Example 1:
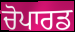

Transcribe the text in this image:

ਚੋਪਾਰਡ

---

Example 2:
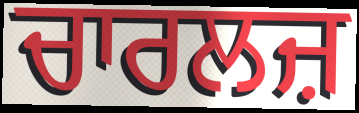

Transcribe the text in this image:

ਚਾਰਲਜ਼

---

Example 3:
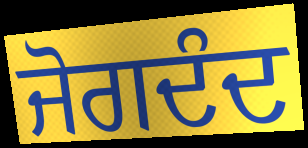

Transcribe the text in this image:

ਜੋਗਦੰਦ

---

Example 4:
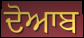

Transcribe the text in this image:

ਦੋਆਬ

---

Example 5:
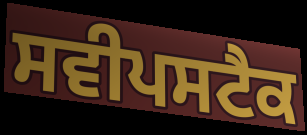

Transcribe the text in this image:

ਸਵੀਪਸਟੈਕ